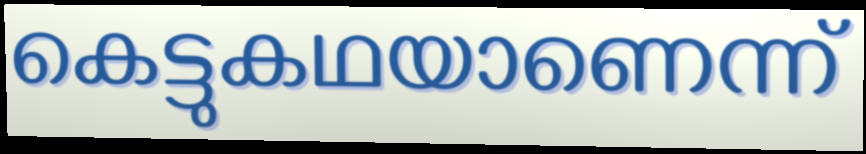
കെട്ടുകഥയാണെന്ന്